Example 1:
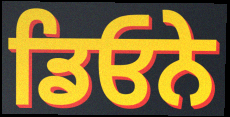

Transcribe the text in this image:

ਡਿਓਨੇ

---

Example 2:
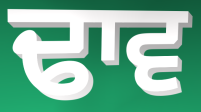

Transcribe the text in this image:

ਢਾਵ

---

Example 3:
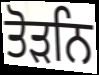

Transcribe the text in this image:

ਤੋੜਨਿ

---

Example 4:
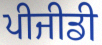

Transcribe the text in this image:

ਪੀਜੀਡੀ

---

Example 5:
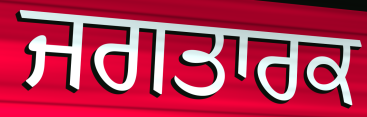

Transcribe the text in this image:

ਜਗਤਾਰਕ